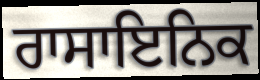
ਰਾਸਾਇਨਿਕ